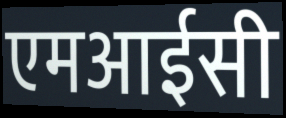
एमआईसी